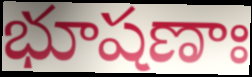
భూషణాః